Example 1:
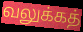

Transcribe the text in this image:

வலுக்கத்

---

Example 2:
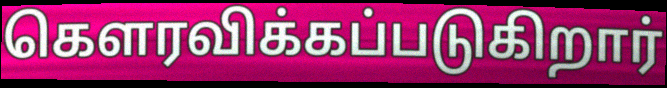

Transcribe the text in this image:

கௌரவிக்கப்படுகிறார்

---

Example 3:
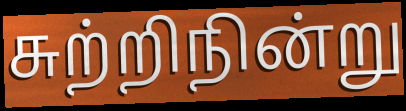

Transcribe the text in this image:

சுற்றிநின்று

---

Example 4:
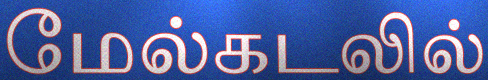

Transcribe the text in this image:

மேல்கடலில்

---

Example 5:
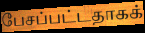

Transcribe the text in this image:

பேசப்பட்டதாகக்